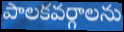
పాలకవర్గాలను